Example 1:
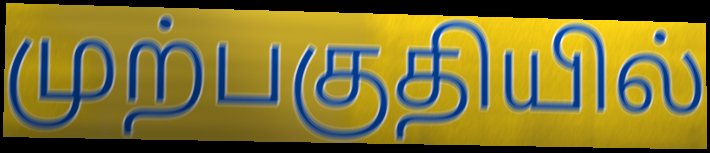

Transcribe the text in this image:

முற்பகுதியில்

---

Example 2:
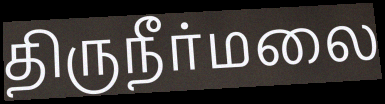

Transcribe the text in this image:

திருநீர்மலை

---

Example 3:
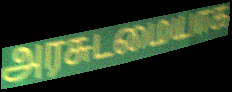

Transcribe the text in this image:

அரசுடமையாக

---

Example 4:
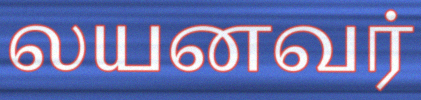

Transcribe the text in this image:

லயனவர்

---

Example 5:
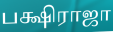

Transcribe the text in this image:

பக்ஷிராஜா